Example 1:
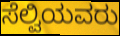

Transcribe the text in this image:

ಸೆಲ್ವಿಯವರು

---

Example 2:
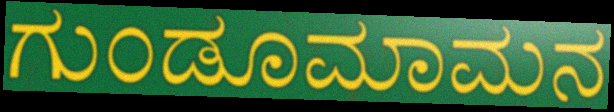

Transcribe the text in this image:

ಗುಂಡೂಮಾಮನ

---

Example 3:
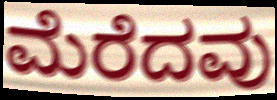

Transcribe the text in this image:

ಮೆರೆದವು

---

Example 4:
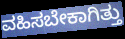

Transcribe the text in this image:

ವಹಿಸಬೇಕಾಗಿತ್ತು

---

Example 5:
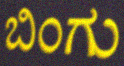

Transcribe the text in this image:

ಬಿಂಗು